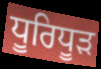
ਧੂਰਿਧੂੜ